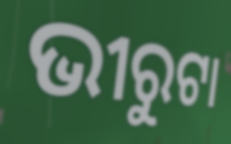
ଭୀରୁଟା